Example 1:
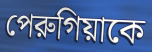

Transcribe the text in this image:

পেরুগিয়াকে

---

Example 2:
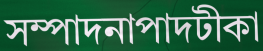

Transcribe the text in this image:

সম্পাদনাপাদটীকা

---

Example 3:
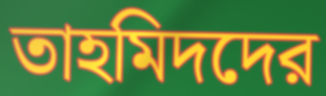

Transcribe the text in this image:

তাহমিদদের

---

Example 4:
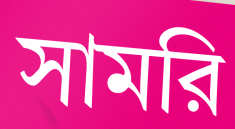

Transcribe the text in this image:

সামরি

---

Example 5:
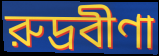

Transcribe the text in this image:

রুদ্রবীণা